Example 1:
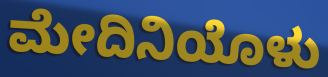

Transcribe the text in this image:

ಮೇದಿನಿಯೊಳು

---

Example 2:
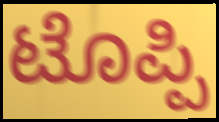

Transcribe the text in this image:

ಟೊಪ್ಪಿ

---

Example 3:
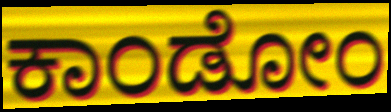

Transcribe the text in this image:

ಕಾಂಡೋಂ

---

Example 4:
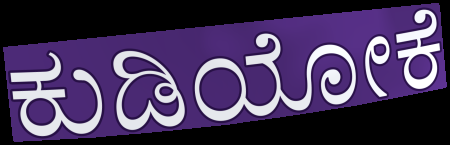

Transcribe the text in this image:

ಕುಡಿಯೋಕೆ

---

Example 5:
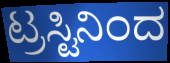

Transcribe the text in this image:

ಟ್ರಸ್ಟಿನಿಂದ